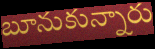
బూనుకున్నారు